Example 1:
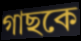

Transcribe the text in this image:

গাছকে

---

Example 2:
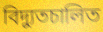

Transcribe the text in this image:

বিদ্যুতচালিত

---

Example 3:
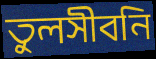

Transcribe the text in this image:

তুলসীবনি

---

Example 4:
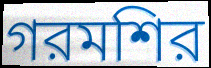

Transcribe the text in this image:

গরমশির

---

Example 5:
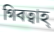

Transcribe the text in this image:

গিবত্বাহ্